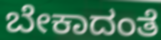
ಬೇಕಾದಂತೆ